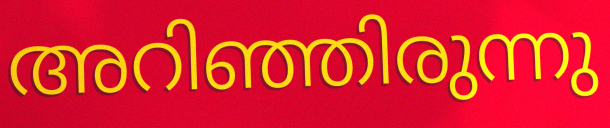
അറിഞ്ഞിരുന്നു